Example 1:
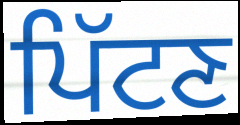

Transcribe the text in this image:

ਪਿੱਟਣ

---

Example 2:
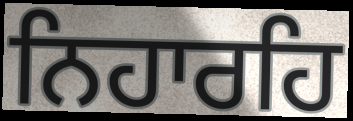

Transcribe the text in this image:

ਨਿਹਾਰਹਿ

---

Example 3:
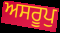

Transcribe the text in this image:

ਅਸਰੂਪੁ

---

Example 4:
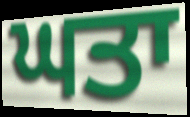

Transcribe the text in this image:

ਘਤਾ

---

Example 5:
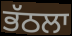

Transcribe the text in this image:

ਭੱਠਲਾ